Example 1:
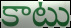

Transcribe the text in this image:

కాటు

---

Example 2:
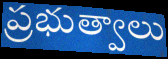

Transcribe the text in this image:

ప్రభుత్వాలు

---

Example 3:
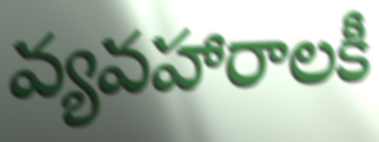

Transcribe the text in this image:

వ్యవహారాలకీ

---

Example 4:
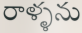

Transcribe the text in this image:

రాళ్ళను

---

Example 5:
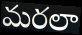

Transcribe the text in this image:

మరలా